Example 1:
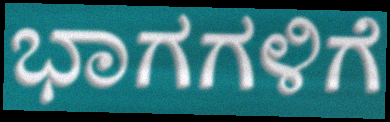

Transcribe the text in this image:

ಭಾಗಗಳಿಗೆ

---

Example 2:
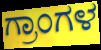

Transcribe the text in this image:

ಗ್ರಾಂಗಳ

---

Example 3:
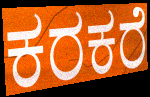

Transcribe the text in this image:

ಕರಕರೆ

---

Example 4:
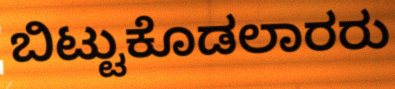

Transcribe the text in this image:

ಬಿಟ್ಟುಕೊಡಲಾರರು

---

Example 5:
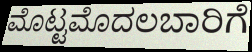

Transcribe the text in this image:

ಮೊಟ್ಟಮೊದಲಬಾರಿಗೆ